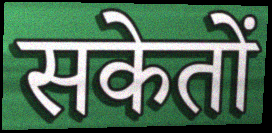
सकेतों